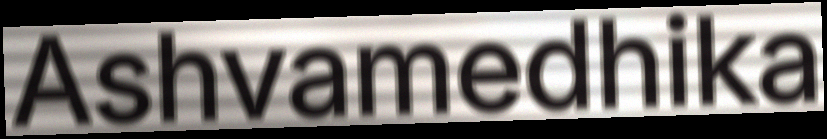
Ashvamedhika